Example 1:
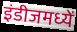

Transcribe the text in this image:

इंडीजमध्यें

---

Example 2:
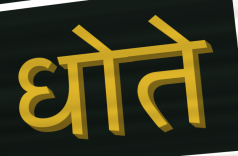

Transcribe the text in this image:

धोते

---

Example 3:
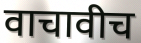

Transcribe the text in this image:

वाचावीच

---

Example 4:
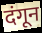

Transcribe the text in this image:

दंगून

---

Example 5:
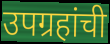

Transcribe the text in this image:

उपग्रहांची